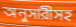
অনুসারীসহ